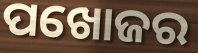
ପଖୋଜର